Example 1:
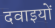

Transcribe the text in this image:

दवाइयों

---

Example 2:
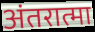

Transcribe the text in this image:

अंतरात्मा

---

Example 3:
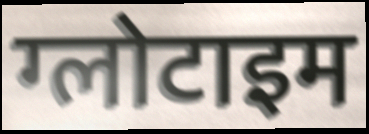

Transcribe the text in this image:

ग्लोटाइम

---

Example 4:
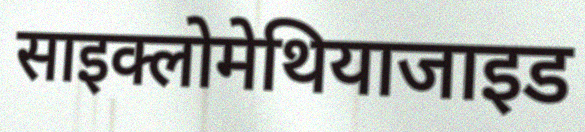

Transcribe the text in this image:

साइक्लोमेथियाजाइड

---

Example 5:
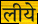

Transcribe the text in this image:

लीये